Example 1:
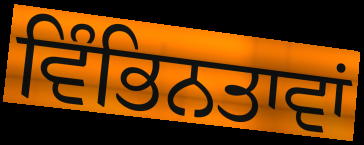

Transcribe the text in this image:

ਵਿੰਭਿਨਤਾਵਾਂ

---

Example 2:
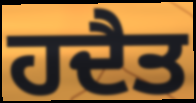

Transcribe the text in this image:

ਹਦੈਤ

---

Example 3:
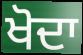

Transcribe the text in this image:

ਖੋਦਾ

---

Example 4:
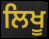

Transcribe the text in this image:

ਲਿਖੂ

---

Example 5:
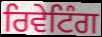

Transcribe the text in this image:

ਰਿਵੇਟਿੰਗ